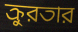
ক্রুরতার